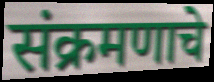
संक्रमणाचे